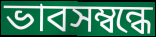
ভাবসম্বন্ধে